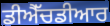
ਡੀਐੱਚਡੀਆਰ